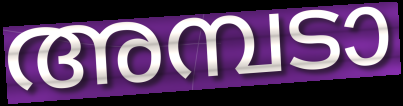
അമ്പടാ